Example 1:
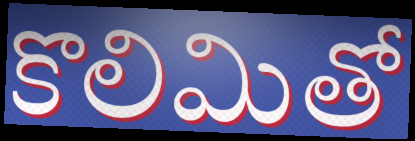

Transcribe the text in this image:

కొలిమితో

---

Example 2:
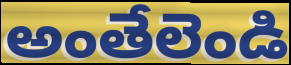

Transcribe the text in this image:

అంతేలెండి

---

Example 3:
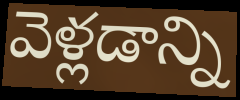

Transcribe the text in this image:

వెళ్లడాన్ని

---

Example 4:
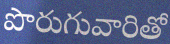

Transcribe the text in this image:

పొరుగువారితో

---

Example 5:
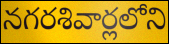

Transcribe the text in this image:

నగరశివార్లలోని